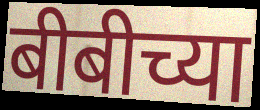
बीबीच्या